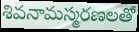
శివనామస్మరణలతో